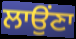
ਲਾਉਂਣਾ